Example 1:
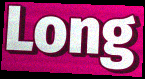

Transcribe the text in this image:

Long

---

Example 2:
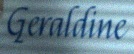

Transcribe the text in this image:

Geraldine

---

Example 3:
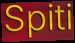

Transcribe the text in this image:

Spiti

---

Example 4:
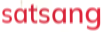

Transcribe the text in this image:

satsang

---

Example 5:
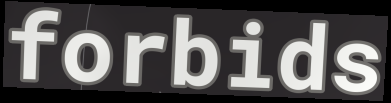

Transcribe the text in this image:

forbids